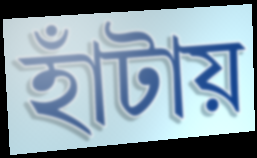
হাঁটায়